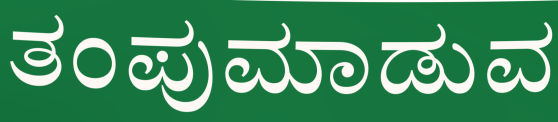
ತಂಪುಮಾಡುವ